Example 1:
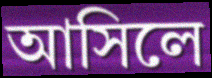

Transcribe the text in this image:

আসিলে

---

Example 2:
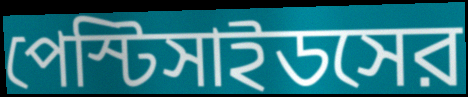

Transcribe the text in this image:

পেস্টিসাইডসের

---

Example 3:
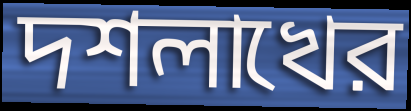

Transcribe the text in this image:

দশলাখের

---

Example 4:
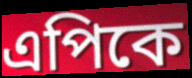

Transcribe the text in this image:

এপিকে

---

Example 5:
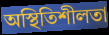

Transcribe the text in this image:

অস্থিতিশীলতা